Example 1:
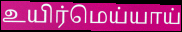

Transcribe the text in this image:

உயிர்மெய்யாய்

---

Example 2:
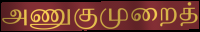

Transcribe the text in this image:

அணுகுமுறைத்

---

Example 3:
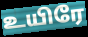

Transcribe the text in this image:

உயிரே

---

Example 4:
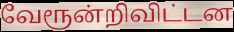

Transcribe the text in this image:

வேரூன்றிவிட்டன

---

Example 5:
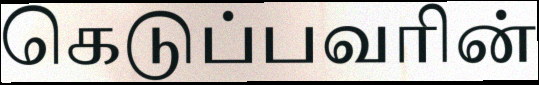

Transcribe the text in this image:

கெடுப்பவரின்